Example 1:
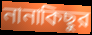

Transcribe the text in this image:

নানাকিছুর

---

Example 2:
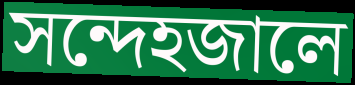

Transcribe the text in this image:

সন্দেহজালে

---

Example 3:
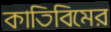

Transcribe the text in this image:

কাতিবিমের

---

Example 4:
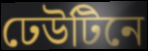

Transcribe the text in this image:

ঢেউটিনে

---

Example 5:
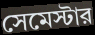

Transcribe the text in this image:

সেমেস্টার